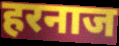
हरनाज